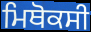
ਮਿਥੋਕਸੀ